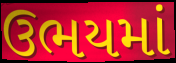
ઉભયમાં